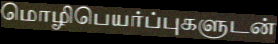
மொழிபெயர்ப்புகளுடன்